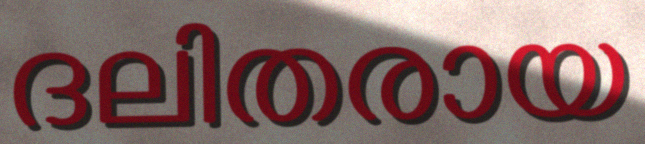
ദലിതരായ